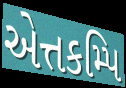
એત્તકમ્પિ